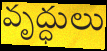
వృద్ధులు